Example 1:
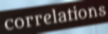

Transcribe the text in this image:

correlations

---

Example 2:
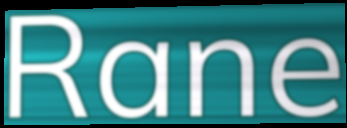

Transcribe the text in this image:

Rane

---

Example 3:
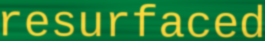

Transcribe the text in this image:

resurfaced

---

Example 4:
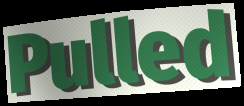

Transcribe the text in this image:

Pulled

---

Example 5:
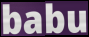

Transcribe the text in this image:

babu